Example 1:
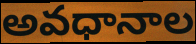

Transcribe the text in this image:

అవధానాల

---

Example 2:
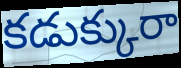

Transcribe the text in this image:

కడుక్కురా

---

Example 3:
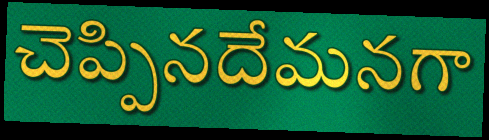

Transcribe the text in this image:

చెప్పినదేమనగా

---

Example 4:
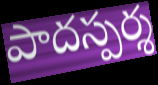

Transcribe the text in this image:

పాదస్పర్శ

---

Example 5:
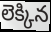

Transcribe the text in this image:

లెక్కిన